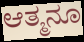
ಆತ್ಮನೂ